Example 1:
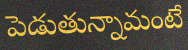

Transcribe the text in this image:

పెడుతున్నామంటే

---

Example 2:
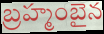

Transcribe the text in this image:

బ్రహ్మంబైన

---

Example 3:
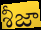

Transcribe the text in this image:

శీజా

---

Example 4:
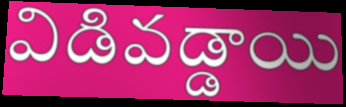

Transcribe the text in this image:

విడివడ్డాయి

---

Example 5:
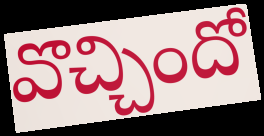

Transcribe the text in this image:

వొచ్చిందో